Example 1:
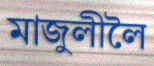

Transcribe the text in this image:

মাজুলীলৈ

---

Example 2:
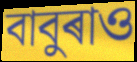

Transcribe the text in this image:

বাবুৰাও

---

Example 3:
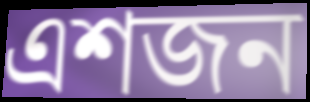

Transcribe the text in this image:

এশজন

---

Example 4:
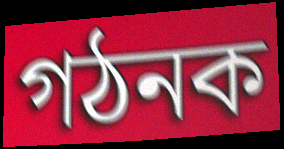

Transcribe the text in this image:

গঠনক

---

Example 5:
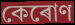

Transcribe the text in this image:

কেৰোণ